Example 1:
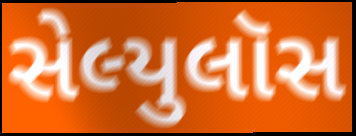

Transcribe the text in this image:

સેલ્યુલૉસ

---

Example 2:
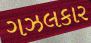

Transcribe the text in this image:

ગઝલકાર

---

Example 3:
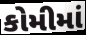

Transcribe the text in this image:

કોમીમાં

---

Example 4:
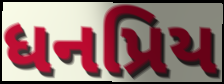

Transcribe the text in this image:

ધનપ્રિય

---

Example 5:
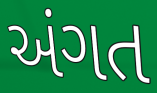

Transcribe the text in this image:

અંગત